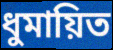
ধুমায়িত